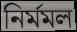
নির্মমল